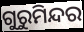
ଗୁରୁମିନ୍ଦର